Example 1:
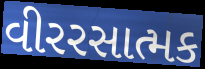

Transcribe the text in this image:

વીરરસાત્મક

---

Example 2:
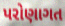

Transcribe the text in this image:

પરોણાગત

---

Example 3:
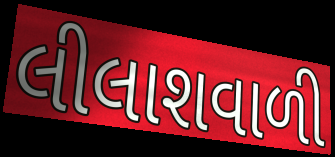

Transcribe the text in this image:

લીલાશવાળી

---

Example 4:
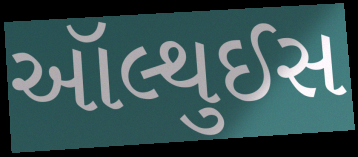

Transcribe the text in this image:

ઑલ્થુઈસ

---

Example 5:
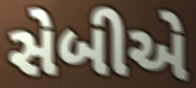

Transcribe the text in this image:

સેબીએ